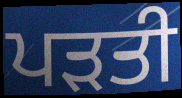
ਪੜਤੀ